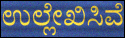
ಉಲ್ಲೇಖಿಸಿವೆ